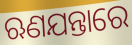
ଋଣଯନ୍ତାରେ